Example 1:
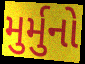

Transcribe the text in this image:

મુર્મુનો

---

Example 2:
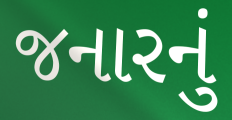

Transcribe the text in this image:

જનારનું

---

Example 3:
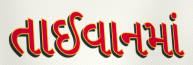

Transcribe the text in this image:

તાઈવાનમાં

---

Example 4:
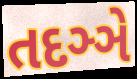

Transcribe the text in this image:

તદઞ્ઞે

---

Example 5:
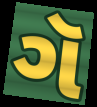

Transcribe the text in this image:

ગૅ